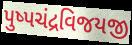
પુષ્પચંદ્રવિજયજી